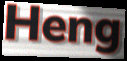
Heng